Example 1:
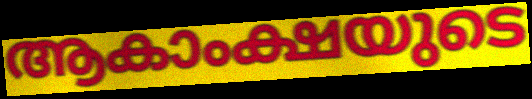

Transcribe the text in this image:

ആകാംക്ഷയുടെ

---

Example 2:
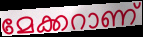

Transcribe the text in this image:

മേക്കറാണ്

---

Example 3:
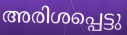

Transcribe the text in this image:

അരിശപ്പെട്ടു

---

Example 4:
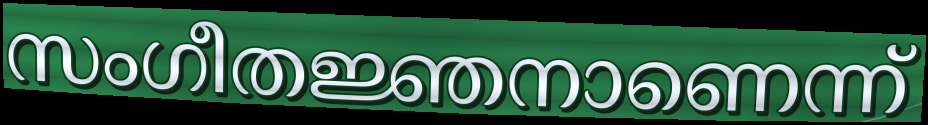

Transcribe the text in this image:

സംഗീതജ്ഞനാണെന്ന്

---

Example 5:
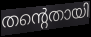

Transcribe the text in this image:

തന്റെതായി